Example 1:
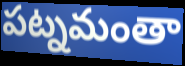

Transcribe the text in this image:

పట్నమంతా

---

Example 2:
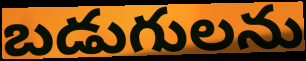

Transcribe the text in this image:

బడుగులను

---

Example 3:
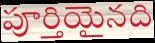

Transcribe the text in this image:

పూర్తియైనది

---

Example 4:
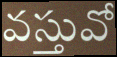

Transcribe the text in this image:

వస్తువో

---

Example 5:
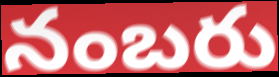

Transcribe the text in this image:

నంబరు